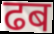
ढब